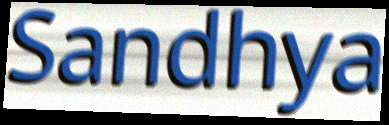
Sandhya